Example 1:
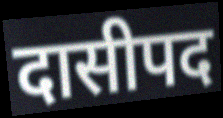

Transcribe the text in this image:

दासीपद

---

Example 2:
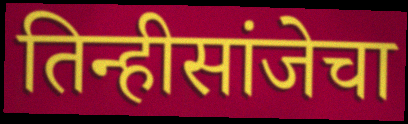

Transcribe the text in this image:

तिन्हीसांजेचा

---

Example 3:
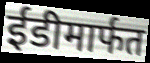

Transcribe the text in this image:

ईडीमार्फत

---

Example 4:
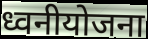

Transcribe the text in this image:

ध्वनीयोजना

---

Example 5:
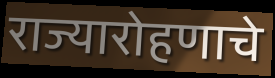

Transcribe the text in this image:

राज्यारोहणाचे